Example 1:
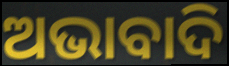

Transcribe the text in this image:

ଅଭାବାଦି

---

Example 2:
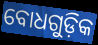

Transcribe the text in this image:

ବୋଧଗୁଡ଼ିକ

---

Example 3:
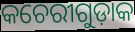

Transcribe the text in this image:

କଚେରୀଗୁଡ଼ାକ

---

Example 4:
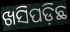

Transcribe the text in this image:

ଖସିପଡ଼ିଛ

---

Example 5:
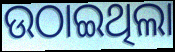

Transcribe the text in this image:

ଉଠାଇଥିଲା